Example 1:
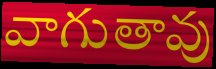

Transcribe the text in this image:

వాగుతావు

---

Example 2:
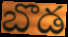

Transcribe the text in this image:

బొడ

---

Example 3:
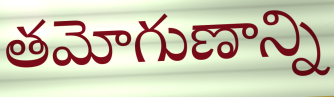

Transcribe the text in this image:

తమోగుణాన్ని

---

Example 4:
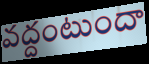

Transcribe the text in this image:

వద్దంటుందా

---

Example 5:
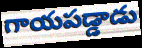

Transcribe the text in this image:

గాయపడ్డాడు